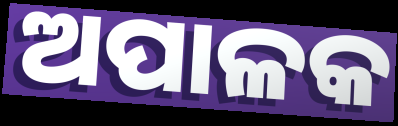
ଅପାଳକ